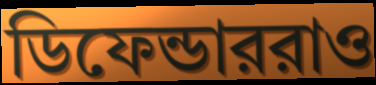
ডিফেন্ডাররাও